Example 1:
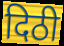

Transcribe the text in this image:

दिठी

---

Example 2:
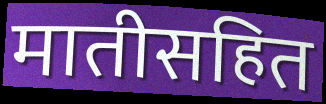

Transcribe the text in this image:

मातीसहित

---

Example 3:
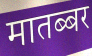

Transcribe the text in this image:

मातब्बर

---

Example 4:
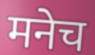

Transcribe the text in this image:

मनेच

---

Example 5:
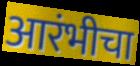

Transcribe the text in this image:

आरंभीचा